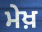
ਮੇਖ਼